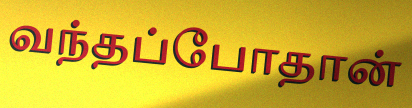
வந்தப்போதான்